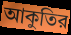
আকুতির